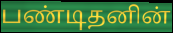
பண்டிதனின்